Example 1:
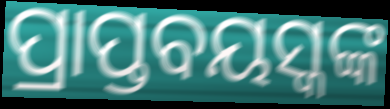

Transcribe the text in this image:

ପ୍ରାପ୍ତବୟସ୍କଙ୍କ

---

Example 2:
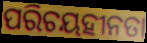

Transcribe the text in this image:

ପରିଚୟହୀନତା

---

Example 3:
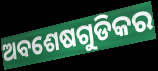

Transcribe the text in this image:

ଅବଶେଷଗୁଡିକର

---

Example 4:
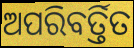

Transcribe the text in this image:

ଅପରିବର୍ତ୍ତିତ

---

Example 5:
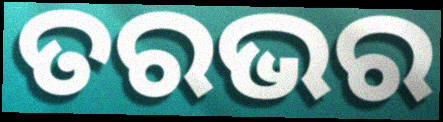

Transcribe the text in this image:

ତରଭର